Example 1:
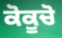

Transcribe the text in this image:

ਕੋਕੂਚੋ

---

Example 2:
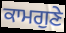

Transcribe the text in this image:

ਕਾਮਗੁਣੇ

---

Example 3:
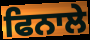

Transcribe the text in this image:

ਫਿਨਾਲੇ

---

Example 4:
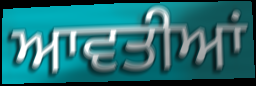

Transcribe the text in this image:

ਆਵਤੀਆਂ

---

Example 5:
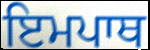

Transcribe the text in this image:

ਇਮਪਾਥ